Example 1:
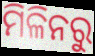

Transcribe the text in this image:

ମିଳିନରୁ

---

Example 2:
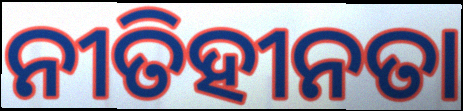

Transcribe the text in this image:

ନୀତିହୀନତା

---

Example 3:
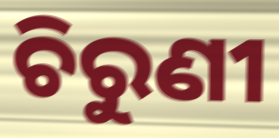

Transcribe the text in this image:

ଚିରୁଣୀ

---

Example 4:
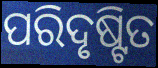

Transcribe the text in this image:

ପରିଦୃଷ୍ଟିତ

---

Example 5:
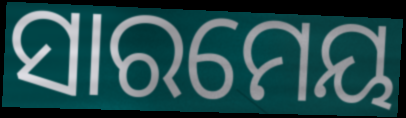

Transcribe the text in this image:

ସାରମେୟ